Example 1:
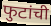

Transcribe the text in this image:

फुटांची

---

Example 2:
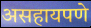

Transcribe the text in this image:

असहायपणे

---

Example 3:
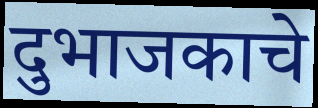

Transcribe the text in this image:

दुभाजकाचे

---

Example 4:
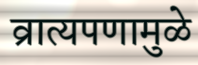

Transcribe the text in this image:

व्रात्यपणामुळे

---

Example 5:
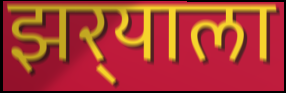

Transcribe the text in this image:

झर्‍याला